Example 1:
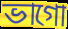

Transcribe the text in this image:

ভাগো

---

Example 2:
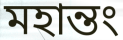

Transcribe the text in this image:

মহান্তং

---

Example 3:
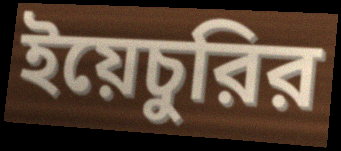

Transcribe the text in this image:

ইয়েচুরির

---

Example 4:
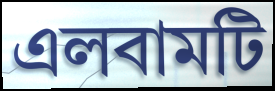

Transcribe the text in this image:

এলবামটি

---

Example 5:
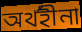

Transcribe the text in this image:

অর্থহীনা